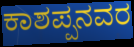
ಕಾಶಪ್ಪನವರ